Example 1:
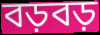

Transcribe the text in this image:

বড়বড়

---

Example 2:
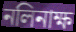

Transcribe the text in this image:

নলিনাক্ষ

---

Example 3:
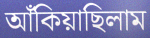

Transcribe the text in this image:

আঁকিয়াছিলাম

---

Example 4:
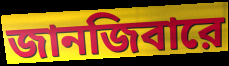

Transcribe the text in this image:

জানজিবারে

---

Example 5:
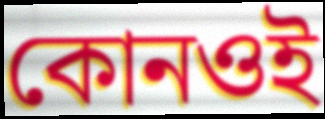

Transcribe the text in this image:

কোনওই